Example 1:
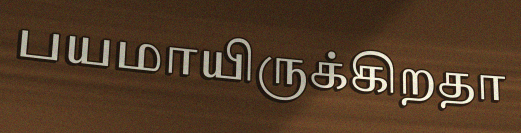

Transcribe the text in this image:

பயமாயிருக்கிறதா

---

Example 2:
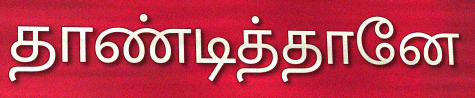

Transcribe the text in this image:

தாண்டித்தானே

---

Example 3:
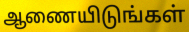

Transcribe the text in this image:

ஆணையிடுங்கள்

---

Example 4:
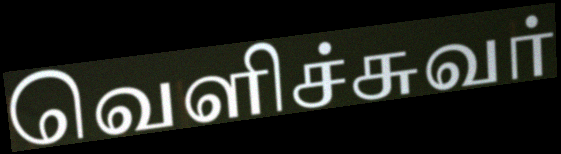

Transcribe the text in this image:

வெளிச்சுவர்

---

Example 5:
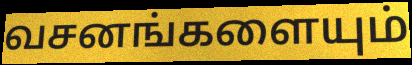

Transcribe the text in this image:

வசனங்களையும்